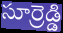
సూర్రెడ్డి